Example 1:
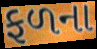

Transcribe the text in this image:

ફળના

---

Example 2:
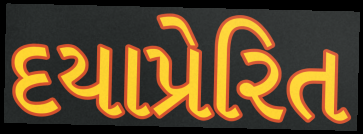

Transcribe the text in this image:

દયાપ્રેરિત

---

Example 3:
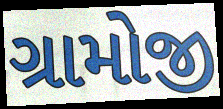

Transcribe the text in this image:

ગ્રામોજી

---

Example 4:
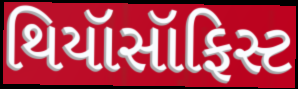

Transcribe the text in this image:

થિયૉસૉફિસ્ટ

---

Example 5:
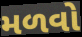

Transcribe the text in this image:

મળવો